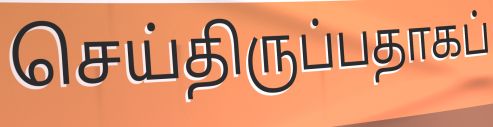
செய்திருப்பதாகப்